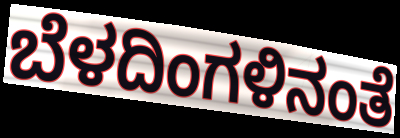
ಬೆಳದಿಂಗಳಿನಂತೆ